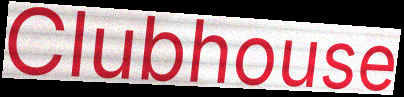
Clubhouse